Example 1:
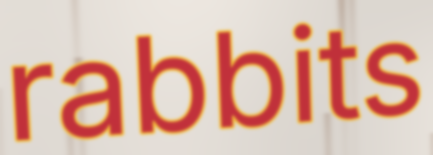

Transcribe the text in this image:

rabbits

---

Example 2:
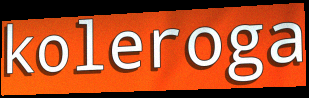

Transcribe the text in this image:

koleroga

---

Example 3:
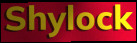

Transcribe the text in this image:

Shylock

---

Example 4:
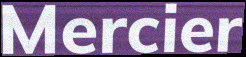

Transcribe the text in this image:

Mercier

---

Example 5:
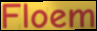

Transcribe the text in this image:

Floem